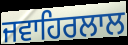
ਜਵਾਹਿਰਲਾਲ